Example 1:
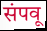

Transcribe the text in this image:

संपवू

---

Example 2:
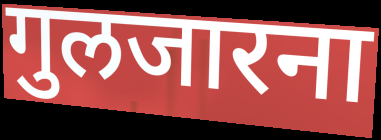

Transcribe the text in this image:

गुलजारना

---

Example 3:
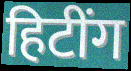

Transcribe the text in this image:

हिटींग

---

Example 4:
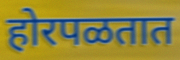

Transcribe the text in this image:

होरपळतात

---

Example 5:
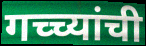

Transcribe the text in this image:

गच्च्यांची